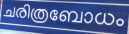
ചരിത്രബോധം